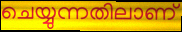
ചെയ്യുന്നതിലാണ്